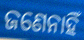
ଜଣେନାହିଁ